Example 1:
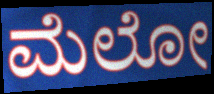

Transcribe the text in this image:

ಮೆಲೋ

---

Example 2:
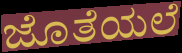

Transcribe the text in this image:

ಜೊತೆಯಲೆ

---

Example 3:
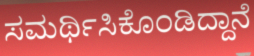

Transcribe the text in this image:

ಸಮರ್ಥಿಸಿಕೊಂಡಿದ್ದಾನೆ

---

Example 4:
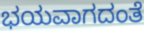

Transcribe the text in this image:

ಭಯವಾಗದಂತೆ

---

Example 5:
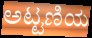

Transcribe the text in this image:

ಅಟ್ಟಣಿಯ